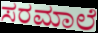
ಸರಮಾಲೆ